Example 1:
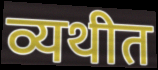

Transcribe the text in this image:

व्यथीत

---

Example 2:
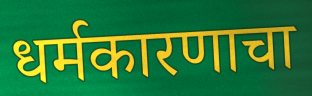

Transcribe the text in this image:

धर्मकारणाचा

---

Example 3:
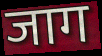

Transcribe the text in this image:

जाग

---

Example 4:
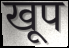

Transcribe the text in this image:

खूप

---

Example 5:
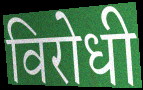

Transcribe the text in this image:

विरोधी